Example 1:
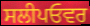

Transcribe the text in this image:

ਸਲੀਪਓਵਰ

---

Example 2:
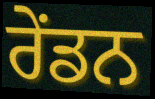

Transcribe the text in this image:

ਰੇਂਡਨ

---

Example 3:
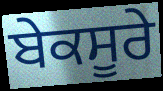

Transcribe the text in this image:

ਬੇਕਸੂਰੇ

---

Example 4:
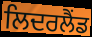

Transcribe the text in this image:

ਲਿਦਰਲੈਂਡ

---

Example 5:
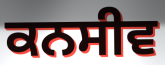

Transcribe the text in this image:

ਕਨਸੀਵ